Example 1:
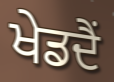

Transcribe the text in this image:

ਖੇਡਦੈਂ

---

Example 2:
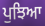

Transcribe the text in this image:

ਪੁਝਿਆ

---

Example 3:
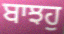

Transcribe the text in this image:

ਬਾਝਹੁ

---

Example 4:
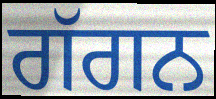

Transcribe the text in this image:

ਗੱਗਨ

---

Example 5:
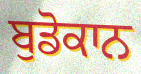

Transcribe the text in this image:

ਬੁਡੋਕਾਨ